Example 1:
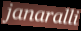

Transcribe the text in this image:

janaralli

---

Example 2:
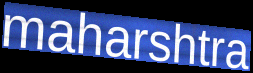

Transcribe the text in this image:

maharshtra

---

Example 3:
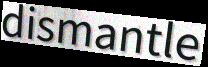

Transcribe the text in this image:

dismantle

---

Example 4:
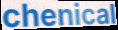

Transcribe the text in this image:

chenical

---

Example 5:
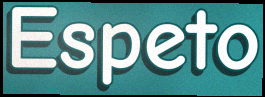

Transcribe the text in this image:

Espeto